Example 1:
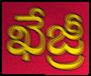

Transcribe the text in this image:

ఖేజ్రీ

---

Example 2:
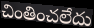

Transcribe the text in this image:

చింతించలేదు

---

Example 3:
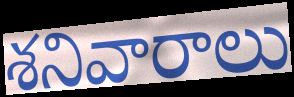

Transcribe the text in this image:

శనివారాలు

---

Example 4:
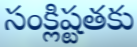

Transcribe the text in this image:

సంక్లిష్టతకు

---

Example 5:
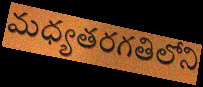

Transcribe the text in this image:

మధ్యతరగతిలోని